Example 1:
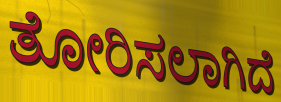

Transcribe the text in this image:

ತೋರಿಸಲಾಗಿದೆ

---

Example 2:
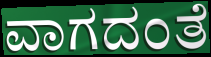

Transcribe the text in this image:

ವಾಗದಂತೆ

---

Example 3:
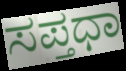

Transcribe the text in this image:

ಸಪ್ತಧಾ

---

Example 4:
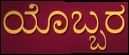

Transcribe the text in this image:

ಯೊಬ್ಬರ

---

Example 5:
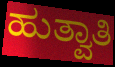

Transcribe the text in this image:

ಹುತ್ವಾತಿ